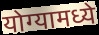
योग्यामध्ये